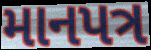
માનપત્ર